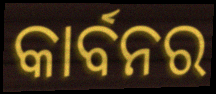
କାର୍ବନର